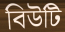
বিউটি